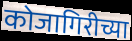
कोजागिरीच्या